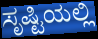
ಸೃಷ್ಟಿಯಲ್ಲಿ